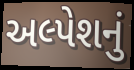
અલ્પેશનું